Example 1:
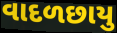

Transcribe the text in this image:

વાદળછાયુ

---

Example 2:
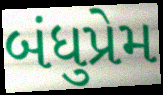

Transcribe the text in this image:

બંધુપ્રેમ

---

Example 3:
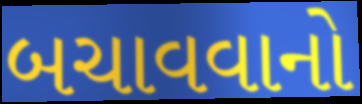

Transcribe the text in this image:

બચાવવાનો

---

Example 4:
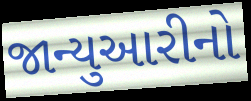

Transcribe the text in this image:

જાન્યુઆરીનો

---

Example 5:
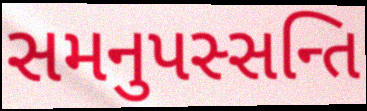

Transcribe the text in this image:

સમનુપસ્સન્તિ